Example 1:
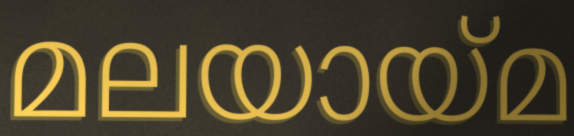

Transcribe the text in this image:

മലയായ്മ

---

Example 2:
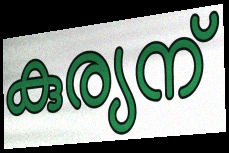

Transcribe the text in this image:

കുര്യന്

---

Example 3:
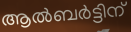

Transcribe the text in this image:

ആൽബർട്ടിന്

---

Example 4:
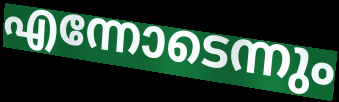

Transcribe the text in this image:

എന്നോടെന്നും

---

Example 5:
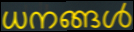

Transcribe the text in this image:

ധനങ്ങൾ